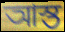
আস্ত